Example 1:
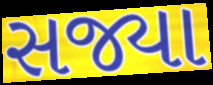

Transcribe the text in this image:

સજ્યા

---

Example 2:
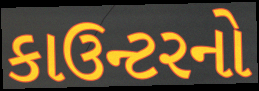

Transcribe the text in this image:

કાઉન્ટરનો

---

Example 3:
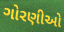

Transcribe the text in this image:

ગોરણીઓ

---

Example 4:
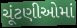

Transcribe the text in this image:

ચૂંટણીઓમાં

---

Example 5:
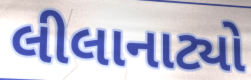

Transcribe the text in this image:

લીલાનાટ્યો